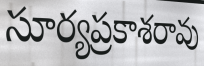
సూర్యప్రకాశరావు